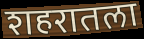
शहरातला